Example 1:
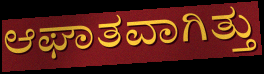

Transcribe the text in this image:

ಆಘಾತವಾಗಿತ್ತು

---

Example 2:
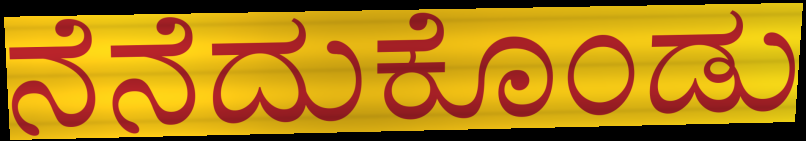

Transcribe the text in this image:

ನೆನೆದುಕೊಂಡು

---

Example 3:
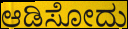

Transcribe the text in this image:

ಆಡಿಸೋದು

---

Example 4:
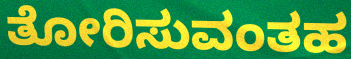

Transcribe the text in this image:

ತೋರಿಸುವಂತಹ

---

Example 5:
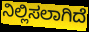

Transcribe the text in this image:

ನಿಲ್ಲಿಸಲಾಗಿದೆ